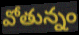
వోతున్నం